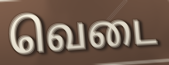
வெடை